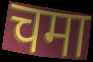
चमा